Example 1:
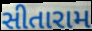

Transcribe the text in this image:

સીતારામ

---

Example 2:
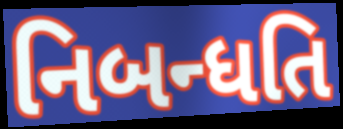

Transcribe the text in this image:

નિબન્ધતિ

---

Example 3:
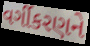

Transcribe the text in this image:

વર્ગીકરણને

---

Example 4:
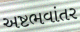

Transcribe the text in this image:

અષ્ટભવાંતર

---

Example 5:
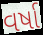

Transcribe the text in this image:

વર્ષા